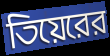
তিয়েরের